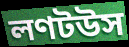
লণটউস